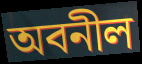
অবনীল